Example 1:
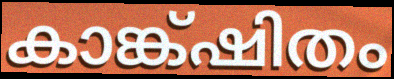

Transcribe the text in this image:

കാങ്ക്ഷിതം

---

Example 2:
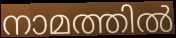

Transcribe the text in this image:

നാമത്തിൽ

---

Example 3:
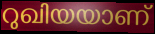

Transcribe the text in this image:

റുഖിയയാണ്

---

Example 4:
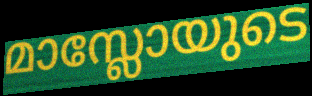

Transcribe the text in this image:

മാസ്ലോയുടെ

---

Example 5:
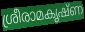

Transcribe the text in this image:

ശ്രീരാമകൃഷ്ണ